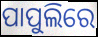
ପାପୁଲିରେ